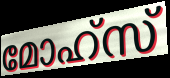
മോഹ്സ്